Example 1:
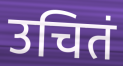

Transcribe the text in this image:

उचितं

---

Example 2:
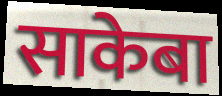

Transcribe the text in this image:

साकेबा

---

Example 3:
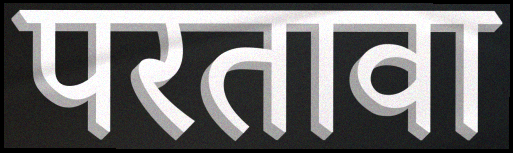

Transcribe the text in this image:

परतावा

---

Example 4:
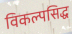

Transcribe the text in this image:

विकल्पसिद्ध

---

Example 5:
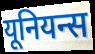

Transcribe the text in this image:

यूनियन्स